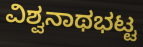
ವಿಶ್ವನಾಥಭಟ್ಟ